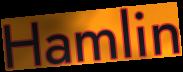
Hamlin